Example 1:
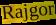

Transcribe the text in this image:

Rajgor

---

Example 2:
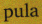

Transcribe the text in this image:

pula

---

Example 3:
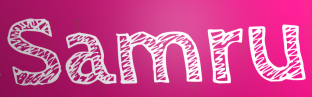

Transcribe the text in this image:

Samru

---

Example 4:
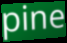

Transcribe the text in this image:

pine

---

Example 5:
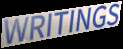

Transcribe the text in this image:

WRITINGS